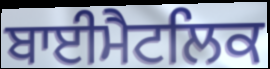
ਬਾਈਮੈਟਲਿਕ